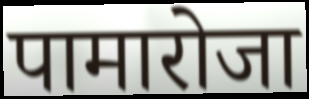
पामारोजा